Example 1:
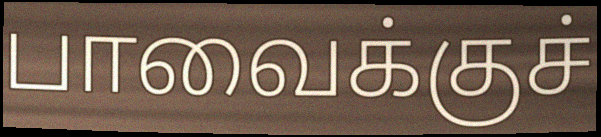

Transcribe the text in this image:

பாவைக்குச்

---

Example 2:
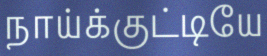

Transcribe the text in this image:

நாய்க்குட்டியே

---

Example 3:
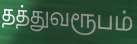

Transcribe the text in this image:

தத்துவரூபம்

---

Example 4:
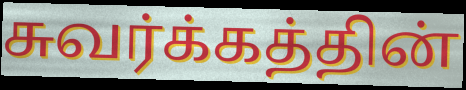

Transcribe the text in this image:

சுவர்க்கத்தின்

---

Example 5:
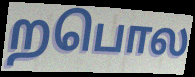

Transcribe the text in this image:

றபொல